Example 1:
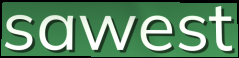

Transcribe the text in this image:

sawest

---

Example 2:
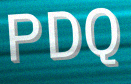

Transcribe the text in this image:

PDQ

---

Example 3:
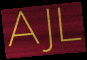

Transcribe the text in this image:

AJL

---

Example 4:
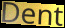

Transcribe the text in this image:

Dent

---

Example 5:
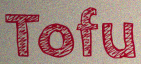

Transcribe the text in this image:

Tofu